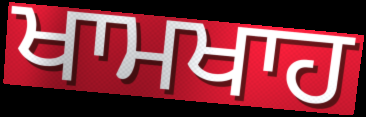
ਖਾਮਖਾਹ